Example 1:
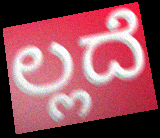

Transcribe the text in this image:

ಲ್ಲದೆ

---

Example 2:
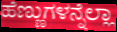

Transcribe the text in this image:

ಹೆಣ್ಣುಗಳನ್ನೆಲ್ಲಾ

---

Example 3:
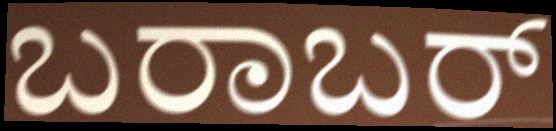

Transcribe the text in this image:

ಬರಾಬರ್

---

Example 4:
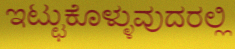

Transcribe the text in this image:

ಇಟ್ಟುಕೊಳ್ಳುವುದರಲ್ಲಿ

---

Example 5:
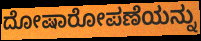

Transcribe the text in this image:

ದೋಷಾರೋಪಣೆಯನ್ನು